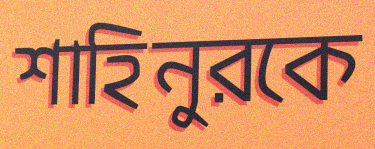
শাহিনুরকে